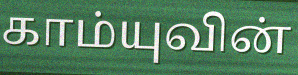
காம்யுவின்